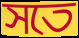
সতে